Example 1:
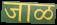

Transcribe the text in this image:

जाळ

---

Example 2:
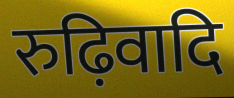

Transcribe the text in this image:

रुढ़िवादि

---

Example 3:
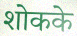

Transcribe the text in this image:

शोकके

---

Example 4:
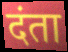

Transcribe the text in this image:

दंता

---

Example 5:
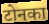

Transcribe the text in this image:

टोनका